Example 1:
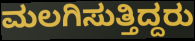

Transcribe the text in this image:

ಮಲಗಿಸುತ್ತಿದ್ದರು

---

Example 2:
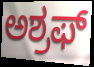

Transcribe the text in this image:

ಅಶ್ರಫ್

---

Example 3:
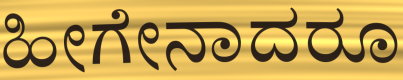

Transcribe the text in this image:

ಹೀಗೇನಾದರೂ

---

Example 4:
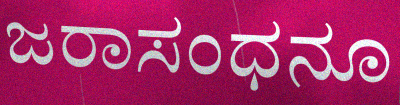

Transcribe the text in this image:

ಜರಾಸಂಧನೂ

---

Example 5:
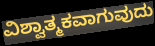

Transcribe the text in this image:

ವಿಶ್ವಾತ್ಮಕವಾಗುವುದು